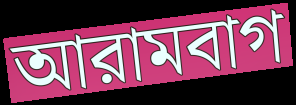
আরামবাগ